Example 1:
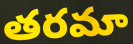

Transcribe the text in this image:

తరమా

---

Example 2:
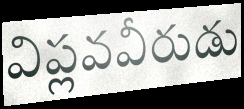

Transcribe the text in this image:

విప్లవవీరుడు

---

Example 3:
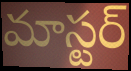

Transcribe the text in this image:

మాస్టర్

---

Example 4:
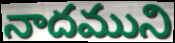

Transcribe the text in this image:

నాదముని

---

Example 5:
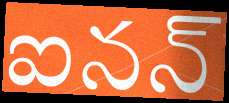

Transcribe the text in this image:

ఐనన్